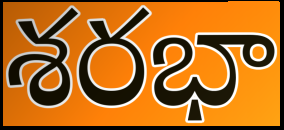
శరభా